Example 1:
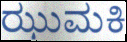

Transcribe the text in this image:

ಝುಮಕಿ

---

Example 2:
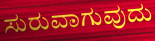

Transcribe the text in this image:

ಸುರುವಾಗುವುದು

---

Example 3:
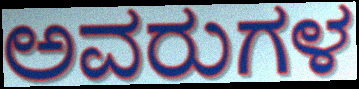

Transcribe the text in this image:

ಅವರುಗಳ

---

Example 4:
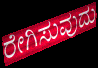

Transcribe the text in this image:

ರೇಗಿಸುವುದು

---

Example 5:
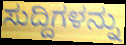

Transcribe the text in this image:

ಸುದ್ದಿಗಳನ್ನು